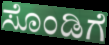
ಸೊಂಡಿಗೆ